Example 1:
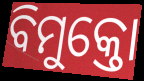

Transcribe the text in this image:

ବିମୁକ୍ତୋ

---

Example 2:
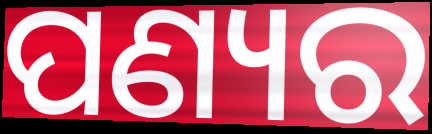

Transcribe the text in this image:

ପଣ୍ୟର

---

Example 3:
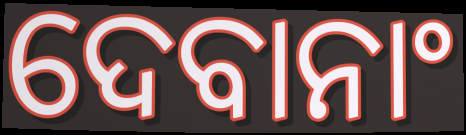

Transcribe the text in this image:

ଦେବାନାଂ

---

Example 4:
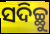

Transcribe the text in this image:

ସଦିଚ୍ଛୁ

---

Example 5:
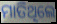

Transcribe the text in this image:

ମାତିଥିଲେ